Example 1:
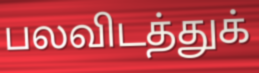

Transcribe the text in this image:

பலவிடத்துக்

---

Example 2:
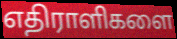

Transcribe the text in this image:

எதிராளிகளை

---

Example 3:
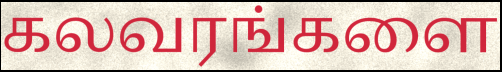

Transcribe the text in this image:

கலவரங்களை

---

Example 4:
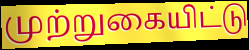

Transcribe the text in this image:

முற்றுகையிட்டு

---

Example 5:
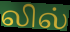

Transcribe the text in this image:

லில்